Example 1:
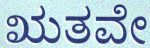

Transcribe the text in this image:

ಋತವೇ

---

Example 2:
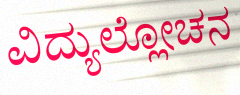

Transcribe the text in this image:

ವಿದ್ಯುಲ್ಲೋಚನ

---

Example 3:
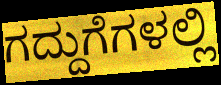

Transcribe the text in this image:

ಗದ್ದುಗೆಗಳಲ್ಲಿ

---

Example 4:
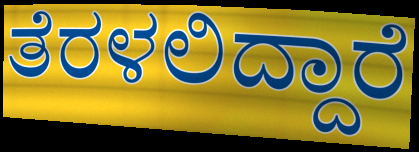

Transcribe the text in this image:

ತೆರಳಲಿದ್ದಾರೆ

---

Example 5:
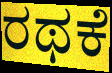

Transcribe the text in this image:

ರಥಕೆ